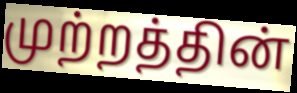
முற்றத்தின்